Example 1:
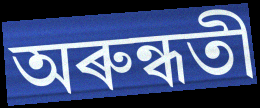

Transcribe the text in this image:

অৰুন্ধতী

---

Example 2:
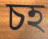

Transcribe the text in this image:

চহ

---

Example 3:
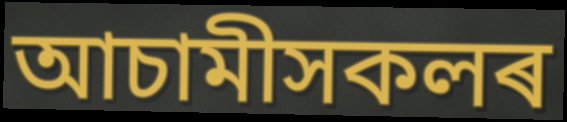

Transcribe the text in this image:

আচামীসকলৰ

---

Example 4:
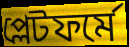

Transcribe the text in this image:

প্লেটফৰ্মে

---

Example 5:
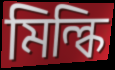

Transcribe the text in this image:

মিল্কি